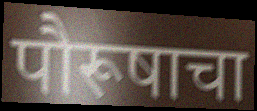
पौरूषाचा